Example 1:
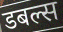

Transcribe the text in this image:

डबल्स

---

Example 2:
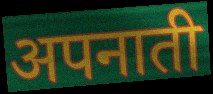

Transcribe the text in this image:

अपनाती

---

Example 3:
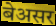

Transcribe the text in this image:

बेअसर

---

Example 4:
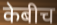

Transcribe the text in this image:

केबीच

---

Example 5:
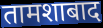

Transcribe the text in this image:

तामशाबाद